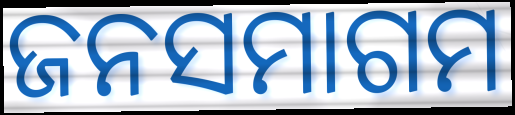
ଜନସମାଗମ